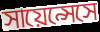
সায়েন্সেসে